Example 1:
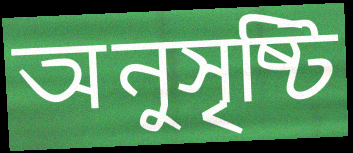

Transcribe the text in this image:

অনুসৃষ্টি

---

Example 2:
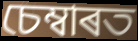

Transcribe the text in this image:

চেম্বাৰত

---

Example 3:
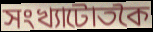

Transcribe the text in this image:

সংখ্যাটোতকৈ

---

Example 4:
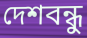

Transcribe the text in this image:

দেশবন্ধু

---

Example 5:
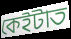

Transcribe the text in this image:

কেইটাত